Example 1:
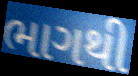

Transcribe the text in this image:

ભાગથી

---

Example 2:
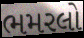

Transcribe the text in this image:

ભમરલો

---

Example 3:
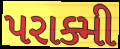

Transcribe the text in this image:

પરાક્મી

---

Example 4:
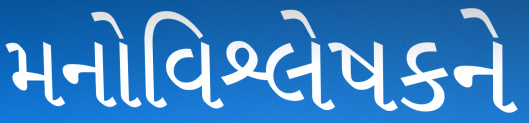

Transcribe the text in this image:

મનોવિશ્લેષકને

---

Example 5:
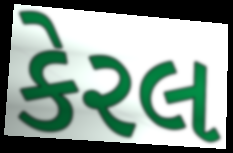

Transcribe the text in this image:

કેરલ